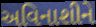
અવિનાશીને